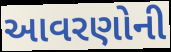
આવરણોની